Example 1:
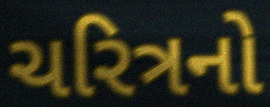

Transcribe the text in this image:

ચરિત્રનો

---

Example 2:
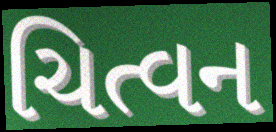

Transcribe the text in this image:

ચિત્વન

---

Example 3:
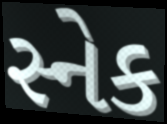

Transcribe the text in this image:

સ્નેક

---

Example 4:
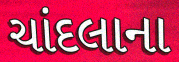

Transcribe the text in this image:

ચાંદલાના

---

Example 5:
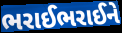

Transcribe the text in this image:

ભરાઈભરાઈને